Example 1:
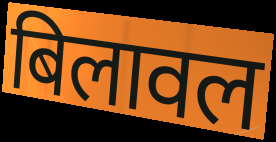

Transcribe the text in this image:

बिलावल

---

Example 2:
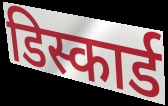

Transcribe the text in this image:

डिस्कार्ड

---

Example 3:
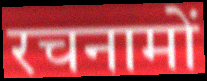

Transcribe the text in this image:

रचनामों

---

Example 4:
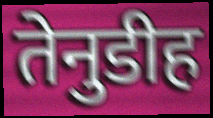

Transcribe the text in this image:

तेनुडीह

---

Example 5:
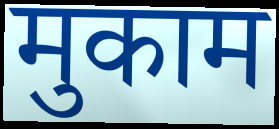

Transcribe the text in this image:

मुकाम